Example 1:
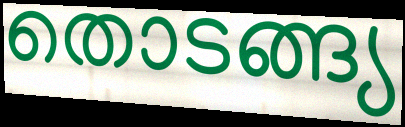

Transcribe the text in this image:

തൊടങ്ങ്യ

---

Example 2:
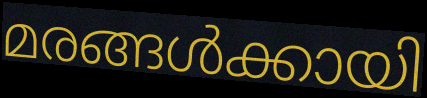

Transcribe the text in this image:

മരങ്ങൾക്കായി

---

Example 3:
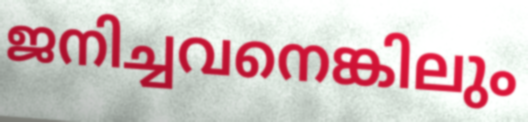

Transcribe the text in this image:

ജനിച്ചവനെങ്കിലും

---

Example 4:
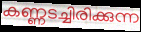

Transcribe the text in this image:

കണ്ണടച്ചിരിക്കുന്ന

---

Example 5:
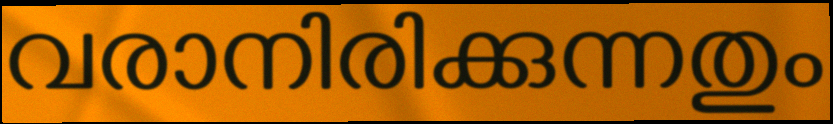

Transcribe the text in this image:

വരാനിരിക്കുന്നതും